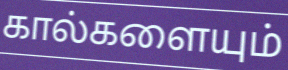
கால்களையும்